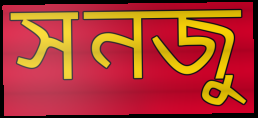
সনজু